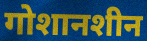
गोशानशीन